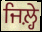
ਜਿਲ਼੍ਹੇ